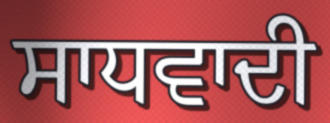
ਸਾਧਵਾਦੀ